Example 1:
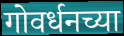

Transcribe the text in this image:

गोवर्धनच्या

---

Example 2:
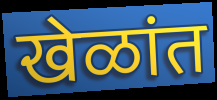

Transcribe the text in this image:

खेळांत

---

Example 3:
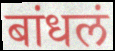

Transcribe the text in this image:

बांधलं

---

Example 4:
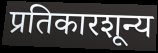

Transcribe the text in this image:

प्रतिकारशून्य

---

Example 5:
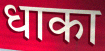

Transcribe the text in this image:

धाका